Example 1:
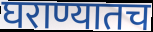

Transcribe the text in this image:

घराण्यातच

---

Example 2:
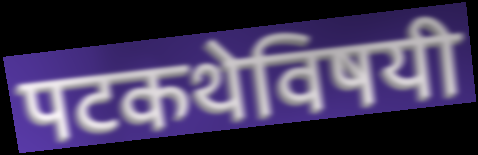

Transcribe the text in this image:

पटकथेविषयी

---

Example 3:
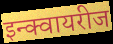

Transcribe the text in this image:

इन्क्वायरीज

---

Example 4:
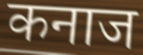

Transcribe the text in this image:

कनाज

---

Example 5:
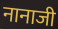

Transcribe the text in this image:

नानाजी